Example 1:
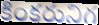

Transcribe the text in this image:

కింకరునిగ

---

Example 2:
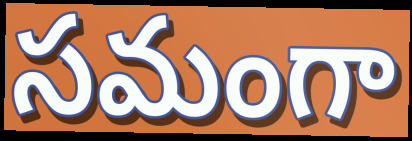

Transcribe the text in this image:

సమంగా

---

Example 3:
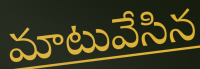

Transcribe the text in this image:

మాటువేసిన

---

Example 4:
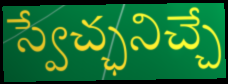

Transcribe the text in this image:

స్వేచ్ఛనిచ్చే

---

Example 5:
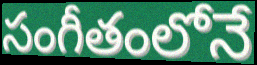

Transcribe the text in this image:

సంగీతంలోనే